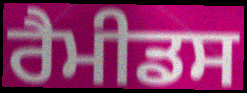
ਰੈਮੀਡਸ